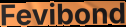
Fevibond